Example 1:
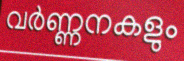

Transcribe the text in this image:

വർണ്ണനകളും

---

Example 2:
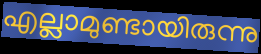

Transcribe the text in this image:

എല്ലാമുണ്ടായിരുന്നു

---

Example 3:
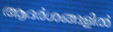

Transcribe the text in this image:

ആദർശങ്ങളിൽ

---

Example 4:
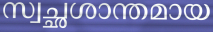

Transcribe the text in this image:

സ്വച്ഛശാന്തമായ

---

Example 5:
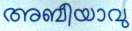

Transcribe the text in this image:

അബീയാവു